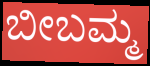
ಬೀಬಮ್ಮ